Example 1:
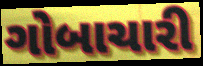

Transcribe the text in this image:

ગોબાચારી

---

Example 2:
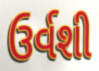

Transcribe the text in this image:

ઉર્વશી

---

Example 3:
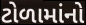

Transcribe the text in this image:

ટોળામાંનો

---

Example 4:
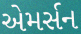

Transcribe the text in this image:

એમર્સન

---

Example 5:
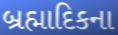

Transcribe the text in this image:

બ્રહ્માદિકના